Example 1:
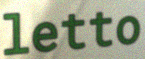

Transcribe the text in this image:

letto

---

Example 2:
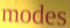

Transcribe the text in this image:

modes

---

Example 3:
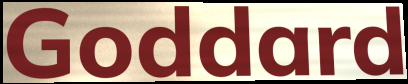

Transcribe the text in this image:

Goddard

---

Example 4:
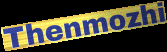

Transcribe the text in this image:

Thenmozhi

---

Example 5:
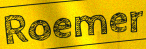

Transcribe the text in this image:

Roemer